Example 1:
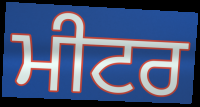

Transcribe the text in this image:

ਮੀਟਰ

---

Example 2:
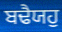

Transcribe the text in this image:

ਬਢੈਯਹੁ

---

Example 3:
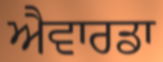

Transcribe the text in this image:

ਐਵਾਰਡਾ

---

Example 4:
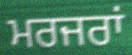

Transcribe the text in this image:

ਮਰਜਰਾਂ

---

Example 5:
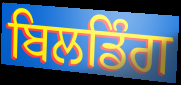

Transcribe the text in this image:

ਬਿਲਡਿੰਗ